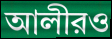
আলীরও